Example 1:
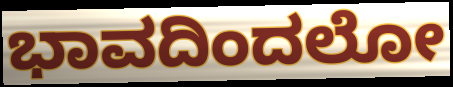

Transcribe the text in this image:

ಭಾವದಿಂದಲೋ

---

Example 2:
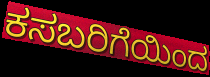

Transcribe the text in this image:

ಕಸಬರಿಗೆಯಿಂದ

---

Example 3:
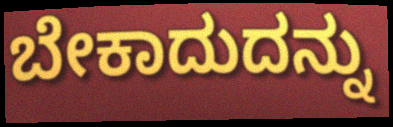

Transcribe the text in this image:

ಬೇಕಾದುದನ್ನು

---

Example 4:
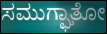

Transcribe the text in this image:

ಸಮುಗ್ಘಾತೋ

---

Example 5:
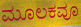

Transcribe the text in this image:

ಮೂಲಕವೂ